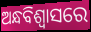
ଅନ୍ଧବିଶ୍ବାସରେ